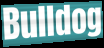
Bulldog